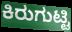
ಕಿರುಗುಟ್ಟಿ